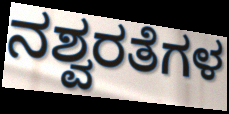
ನಶ್ವರತೆಗಳ